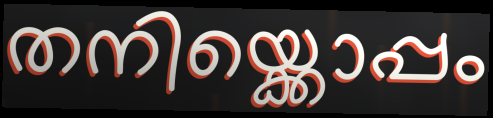
തനിയ്ക്കൊപ്പം